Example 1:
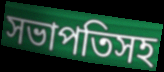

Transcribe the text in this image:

সভাপতিসহ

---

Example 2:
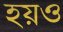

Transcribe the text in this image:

হয়ও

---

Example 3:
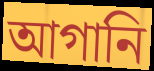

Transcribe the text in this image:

আগানি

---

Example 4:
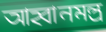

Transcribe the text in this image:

আহ্বানমন্ত্র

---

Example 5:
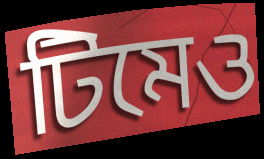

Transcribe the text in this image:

টিমেও